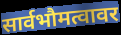
सार्वभौमत्वावर